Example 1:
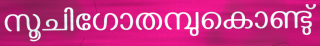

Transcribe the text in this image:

സൂചിഗോതമ്പുകൊണ്ടു്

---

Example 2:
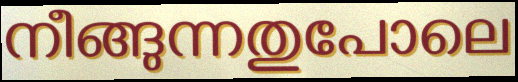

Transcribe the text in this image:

നീങ്ങുന്നതുപോലെ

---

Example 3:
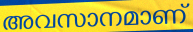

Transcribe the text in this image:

അവസാനമാണ്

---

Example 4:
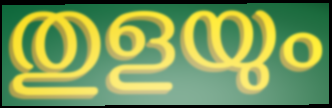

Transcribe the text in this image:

തുളയും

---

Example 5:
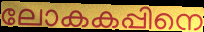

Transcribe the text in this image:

ലോകകപ്പിനെ